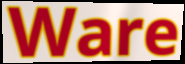
Ware